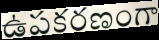
ఉపకరణంగా